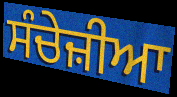
ਸੰਚੇਜ਼ੀਆ